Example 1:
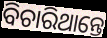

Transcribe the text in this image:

ବିଚାରିଥାନ୍ତେ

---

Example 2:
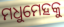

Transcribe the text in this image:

ମଧୁମେହକୁ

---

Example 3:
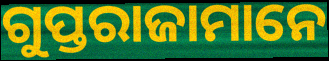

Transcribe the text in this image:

ଗୁପ୍ତରାଜାମାନେ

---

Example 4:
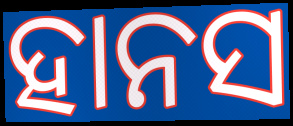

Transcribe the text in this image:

ହାନସ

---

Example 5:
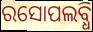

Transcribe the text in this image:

ରସୋପଲବ୍ଧି